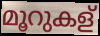
മൂറുകള്